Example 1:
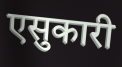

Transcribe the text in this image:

एसुकारी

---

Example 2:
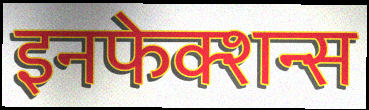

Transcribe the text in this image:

इनफेक्शन्स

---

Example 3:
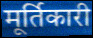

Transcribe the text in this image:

मूर्तिकारी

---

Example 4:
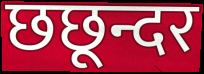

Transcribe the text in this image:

छछून्दर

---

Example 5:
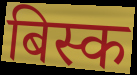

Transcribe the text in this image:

बिस्क